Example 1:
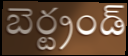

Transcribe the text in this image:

బెర్ట్రండ్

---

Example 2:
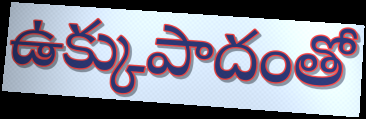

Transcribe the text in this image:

ఉక్కుపాదంతో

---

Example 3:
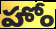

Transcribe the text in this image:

హోం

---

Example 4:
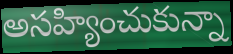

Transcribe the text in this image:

అసహ్యించుకున్నా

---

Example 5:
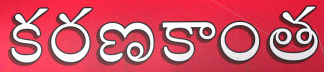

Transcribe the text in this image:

కరణకాంత